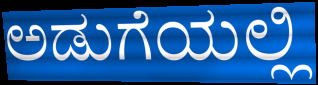
ಅಡುಗೆಯಲ್ಲಿ